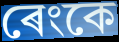
ৰেংকে